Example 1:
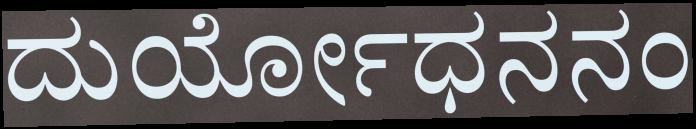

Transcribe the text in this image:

ದುರ್ಯೋಧನನಂ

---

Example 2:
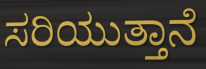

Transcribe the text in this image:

ಸರಿಯುತ್ತಾನೆ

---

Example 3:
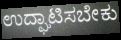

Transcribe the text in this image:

ಉದ್ಘಾಟಿಸಬೇಕು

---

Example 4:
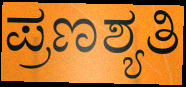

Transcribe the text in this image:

ಪ್ರಣಶ್ಯತಿ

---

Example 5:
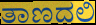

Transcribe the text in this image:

ತಾಣದಲಿ